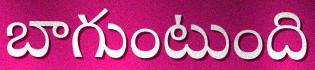
బాగుంటుంది